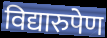
विद्यारुपेण